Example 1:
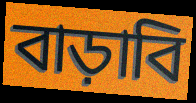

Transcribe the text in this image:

বাড়াবি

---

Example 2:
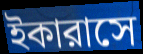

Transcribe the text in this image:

ইকারাসে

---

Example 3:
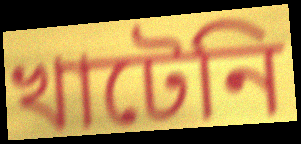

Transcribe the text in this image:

খাটেনি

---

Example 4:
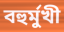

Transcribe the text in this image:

বহুর্মুখী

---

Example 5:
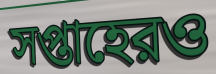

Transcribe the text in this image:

সপ্তাহেরও